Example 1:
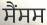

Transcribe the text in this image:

ਸੈਂਸਸ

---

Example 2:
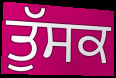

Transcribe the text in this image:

ਤੁੱਸਕ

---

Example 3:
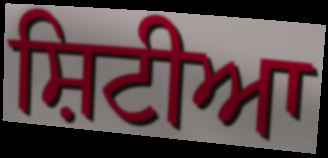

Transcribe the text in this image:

ਸ਼ਿਟੀਆ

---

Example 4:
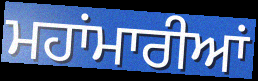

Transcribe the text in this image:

ਮਹਾਂਮਾਰੀਆਂ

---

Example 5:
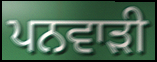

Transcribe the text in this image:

ਪਨਵਾੜੀ